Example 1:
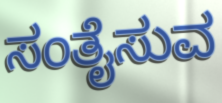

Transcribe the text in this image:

ಸಂತೈಸುವ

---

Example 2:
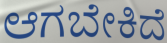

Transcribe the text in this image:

ಆಗಬೇಕಿದೆ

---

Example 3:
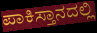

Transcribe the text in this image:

ಪಾಕಿಸ್ತಾನದಲ್ಲಿ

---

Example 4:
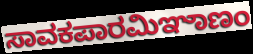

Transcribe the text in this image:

ಸಾವಕಪಾರಮಿಞಾಣಂ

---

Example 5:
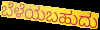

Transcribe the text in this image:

ಬೆಳೆಯಬಹುದು